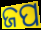
ଜପ